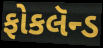
ફોકલૅન્ડ